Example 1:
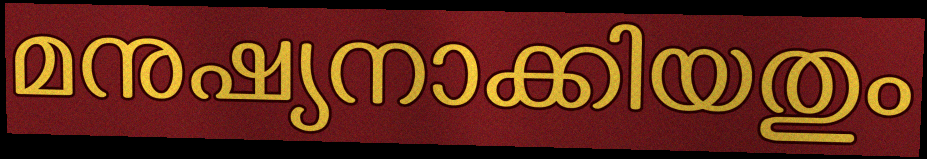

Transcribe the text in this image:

മനുഷ്യനാക്കിയതും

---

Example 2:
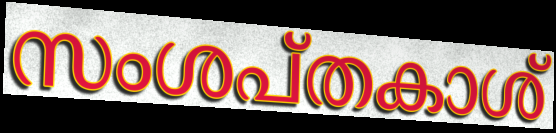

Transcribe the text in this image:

സംശപ്തകാശ്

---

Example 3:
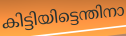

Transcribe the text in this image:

കിട്ടിയിട്ടെന്തിനാ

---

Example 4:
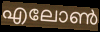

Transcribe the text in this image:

എലോൺ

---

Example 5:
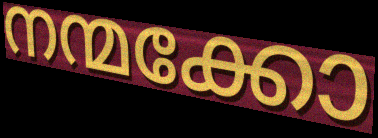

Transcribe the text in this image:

നന്മക്കോ